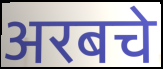
अरबचे